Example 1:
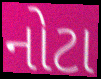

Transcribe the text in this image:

નોટા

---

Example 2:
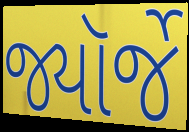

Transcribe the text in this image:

જ્યૉર્જે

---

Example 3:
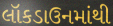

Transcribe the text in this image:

લૉકડાઉનમાંથી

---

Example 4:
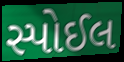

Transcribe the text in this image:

સ્પોઈલ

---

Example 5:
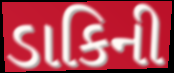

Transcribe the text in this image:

ડાકિની